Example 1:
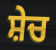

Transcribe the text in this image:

ਸ਼ੇਚ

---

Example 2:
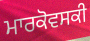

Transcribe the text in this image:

ਮਾਰਕੋਵਸਕੀ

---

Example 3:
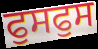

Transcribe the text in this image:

ਫੁਸਫੁਸ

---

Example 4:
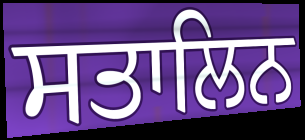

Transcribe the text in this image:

ਸਤਾਲਿਨ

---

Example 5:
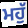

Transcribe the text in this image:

ਮਹੁੱ